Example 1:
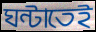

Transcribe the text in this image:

ঘন্টাতেই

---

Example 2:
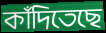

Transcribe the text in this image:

কাঁদিতেছে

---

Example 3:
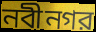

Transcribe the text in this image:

নবীনগর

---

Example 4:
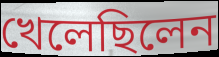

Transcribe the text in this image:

খেলেছিলেন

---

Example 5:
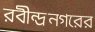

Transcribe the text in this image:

রবীন্দ্রনগরের